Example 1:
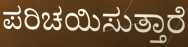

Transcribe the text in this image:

ಪರಿಚಯಿಸುತ್ತಾರೆ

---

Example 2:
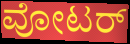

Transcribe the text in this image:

ವೋಟರ್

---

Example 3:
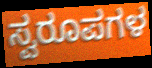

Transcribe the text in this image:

ಸ್ವರೂಪಗಳ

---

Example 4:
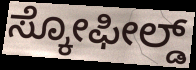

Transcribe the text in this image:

ಸ್ಕೋಫೀಲ್ಡ್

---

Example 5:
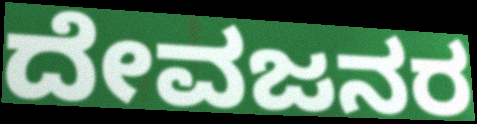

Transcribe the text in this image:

ದೇವಜನರ